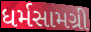
ધર્મસામગ્રી